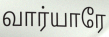
வார்யாரே